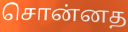
சொன்னத